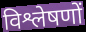
विश्लेषणों